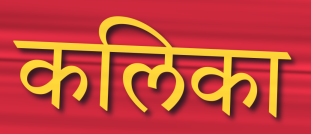
कलिका